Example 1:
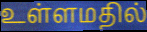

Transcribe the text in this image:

உள்ளமதில்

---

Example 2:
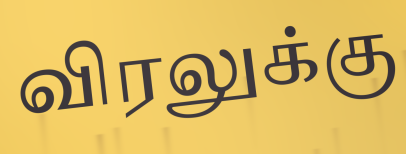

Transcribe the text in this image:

விரலுக்கு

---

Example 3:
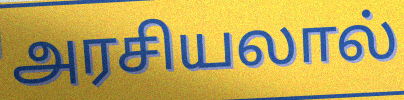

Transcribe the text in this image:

அரசியலால்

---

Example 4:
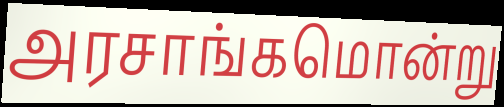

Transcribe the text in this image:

அரசாங்கமொன்று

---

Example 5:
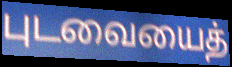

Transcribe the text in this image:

புடவையைத்